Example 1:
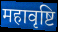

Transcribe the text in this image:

महावृष्टि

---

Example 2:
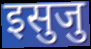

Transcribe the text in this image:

इसुजु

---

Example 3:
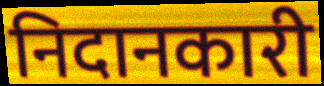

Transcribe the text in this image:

निदानकारी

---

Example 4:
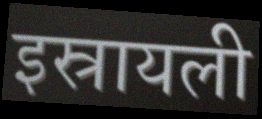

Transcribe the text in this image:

इस्रायली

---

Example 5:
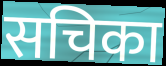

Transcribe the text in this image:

सचिका